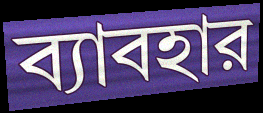
ব্যাবহার